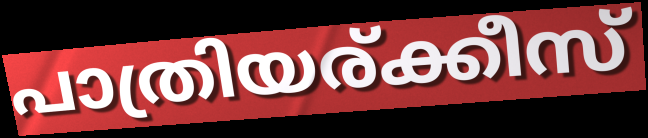
പാത്രിയര്ക്കീസ്